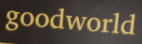
goodworld